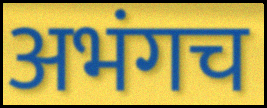
अभंगच